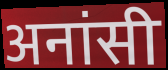
अनांसी